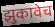
झुकावेच